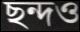
ছন্দও